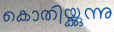
കൊതിയ്ക്കുന്നു